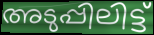
അടുപ്പിലിട്ട്